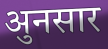
अुनसार